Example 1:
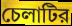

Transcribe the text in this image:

চেলাটির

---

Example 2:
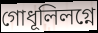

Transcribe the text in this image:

গোধূলিলগ্নে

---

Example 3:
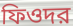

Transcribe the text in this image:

ফিওদর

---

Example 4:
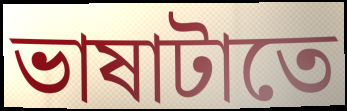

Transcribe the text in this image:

ভাষাটাতে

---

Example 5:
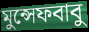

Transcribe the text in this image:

মুন্সেফবাবু